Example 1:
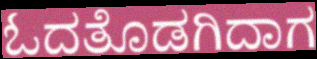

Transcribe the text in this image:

ಓದತೊಡಗಿದಾಗ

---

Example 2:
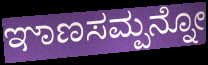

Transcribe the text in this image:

ಞಾಣಸಮ್ಪನ್ನೋ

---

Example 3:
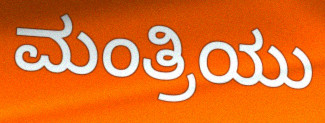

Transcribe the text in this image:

ಮಂತ್ರಿಯು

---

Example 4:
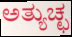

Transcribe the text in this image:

ಅತ್ಯುಚ್ಛ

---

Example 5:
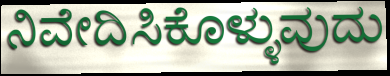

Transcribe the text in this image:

ನಿವೇದಿಸಿಕೊಳ್ಳುವುದು